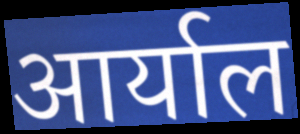
आर्याल